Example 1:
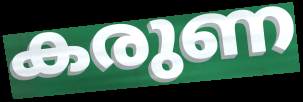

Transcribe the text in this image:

കരുണ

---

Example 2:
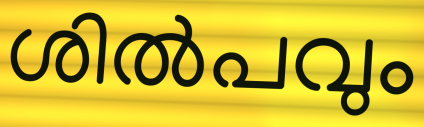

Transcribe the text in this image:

ശിൽപവും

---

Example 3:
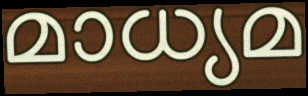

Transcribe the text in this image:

മാധ്യമ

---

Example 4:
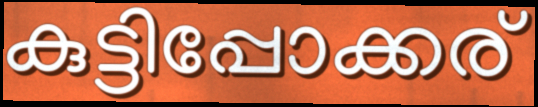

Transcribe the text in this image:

കുട്ടിപ്പോക്കര്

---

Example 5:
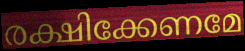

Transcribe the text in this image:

രക്ഷിക്കേണമേ